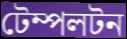
টেম্পলটন